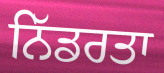
ਨਿੱਡਰਤਾ